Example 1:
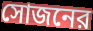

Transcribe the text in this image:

সোজনের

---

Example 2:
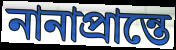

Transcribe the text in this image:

নানাপ্রান্তে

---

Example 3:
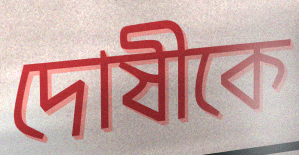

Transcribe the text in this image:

দোষীকে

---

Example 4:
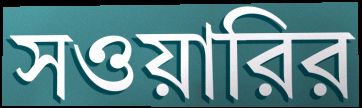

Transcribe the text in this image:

সওয়ারির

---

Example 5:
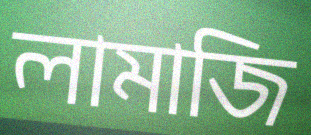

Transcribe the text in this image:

লামাজি